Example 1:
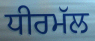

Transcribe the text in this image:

ਧੀਰਮੱਲ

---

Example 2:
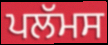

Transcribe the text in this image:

ਪਲੱਮਸ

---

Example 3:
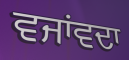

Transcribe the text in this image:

ਵਜਾਂਵਦਾ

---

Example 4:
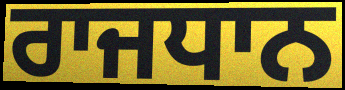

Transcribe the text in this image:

ਰਾਜਧਾਨ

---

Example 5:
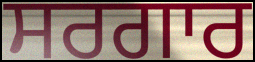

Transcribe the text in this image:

ਸਰਗਾਰ